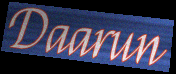
Daarun